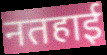
नतहाई